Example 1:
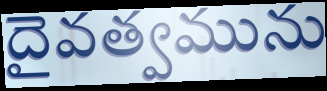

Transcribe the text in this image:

దైవత్వమును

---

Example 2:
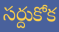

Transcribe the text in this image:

సర్దుకోక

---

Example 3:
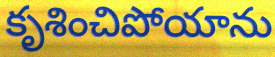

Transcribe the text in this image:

కృశించిపోయాను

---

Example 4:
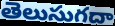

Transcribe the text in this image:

తెలుసుగదా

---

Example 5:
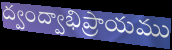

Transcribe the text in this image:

ద్వంద్వాభిప్రాయము